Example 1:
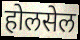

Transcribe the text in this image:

होलसेल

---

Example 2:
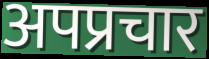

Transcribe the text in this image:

अपप्रचार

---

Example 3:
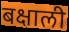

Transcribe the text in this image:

बक्षाली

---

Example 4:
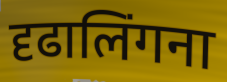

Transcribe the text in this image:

दृढालिंगना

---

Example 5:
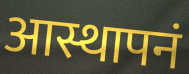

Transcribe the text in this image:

आस्थापनं